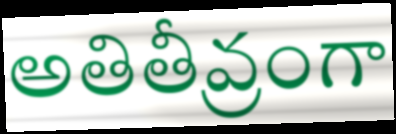
అతితీవ్రంగా